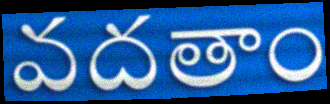
వదతాం